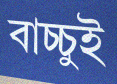
বাচ্চুই